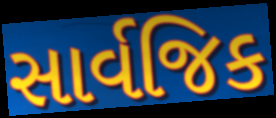
સાર્વજિક